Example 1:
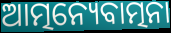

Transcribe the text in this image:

ଆତ୍ମନ୍ୟେବାତ୍ମନା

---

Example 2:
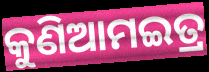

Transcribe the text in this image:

କୁଣିଆମଇତ୍ର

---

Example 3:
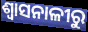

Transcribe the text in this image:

ଶ୍ୱାସନାଳୀରୁ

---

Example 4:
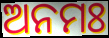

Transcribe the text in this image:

ଅନମଃ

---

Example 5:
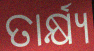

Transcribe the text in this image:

ତାର୍କ୍ଷ୍ୟ